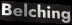
Belching